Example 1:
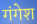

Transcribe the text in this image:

गंगेश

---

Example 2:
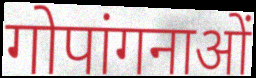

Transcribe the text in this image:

गोपांगनाओं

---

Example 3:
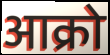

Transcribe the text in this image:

आक्रो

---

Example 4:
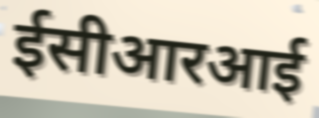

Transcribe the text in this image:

ईसीआरआई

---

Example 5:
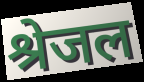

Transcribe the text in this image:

श्रेजल